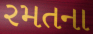
રમતના